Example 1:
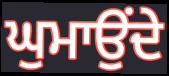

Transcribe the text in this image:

ਘੁਮਾਉਂਦੇ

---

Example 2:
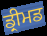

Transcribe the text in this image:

ਡ੍ਰੀਮਡ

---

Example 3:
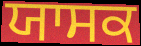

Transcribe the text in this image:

ਯਾਸਕ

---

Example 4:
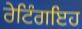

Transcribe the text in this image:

ਰੇਟਿੰਗਇਹ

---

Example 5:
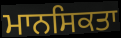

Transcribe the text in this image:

ਮਾਨਸਿਕਤਾ